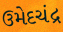
ઉમેદચંદ્ર